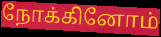
நோக்கினோம்